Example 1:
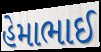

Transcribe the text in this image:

હેમાભાઈ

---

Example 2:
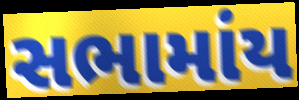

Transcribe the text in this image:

સભામાંય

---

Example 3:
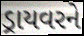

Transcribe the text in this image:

ડ્રાયવરને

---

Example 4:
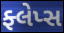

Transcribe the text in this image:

ફ્લેપ્સ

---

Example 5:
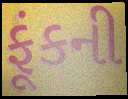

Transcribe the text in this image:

ફૂંકની